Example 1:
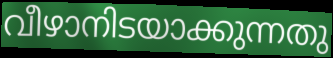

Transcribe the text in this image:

വീഴാനിടയാക്കുന്നതു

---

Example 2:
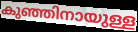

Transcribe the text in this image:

കുഞ്ഞിനായുള്ള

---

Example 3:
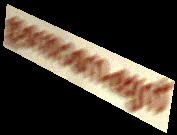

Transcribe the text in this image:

ഇന്തോനേഷ്യന്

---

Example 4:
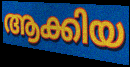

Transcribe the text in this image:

ആക്കിയ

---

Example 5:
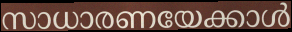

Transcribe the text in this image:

സാധാരണയേക്കാൾ